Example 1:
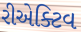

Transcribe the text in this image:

રીએક્ટિવ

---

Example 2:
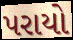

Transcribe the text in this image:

પરાયો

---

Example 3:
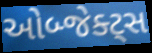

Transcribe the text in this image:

ઓબ્જેક્ટ્સ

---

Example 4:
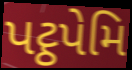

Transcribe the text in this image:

પટ્ઠપેમિ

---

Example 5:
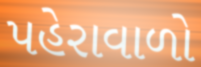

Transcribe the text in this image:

પહેરાવાળો